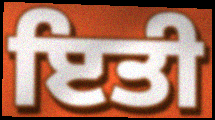
ਇਤੀ